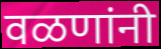
वळणांनी